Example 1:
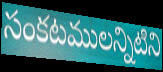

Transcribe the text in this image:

సంకటములన్నిటిని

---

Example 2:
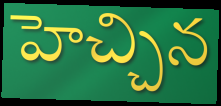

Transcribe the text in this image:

హెచ్చిన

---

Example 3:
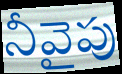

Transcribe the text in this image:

నీవైపు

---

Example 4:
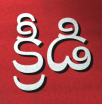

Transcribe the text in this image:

క్రీడి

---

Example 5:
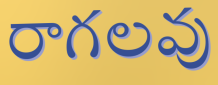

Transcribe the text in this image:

రాగలవు